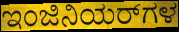
ಇಂಜಿನಿಯರ್‌ಗಳ